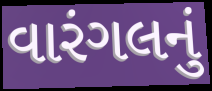
વારંગલનું